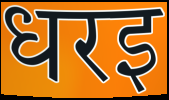
धरइ